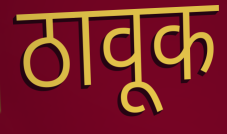
ठावूक